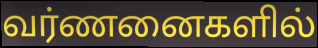
வர்ணனைகளில்